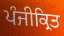
ਪੰਜੀਕ੍ਰਿਤ